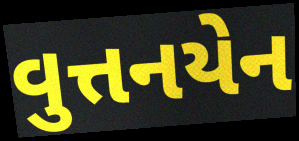
વુત્તનયેન